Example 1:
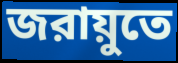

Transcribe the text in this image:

জরায়ুতে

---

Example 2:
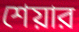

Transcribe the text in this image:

শেয়ার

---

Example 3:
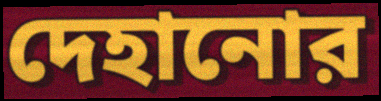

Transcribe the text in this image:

দেহানোর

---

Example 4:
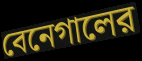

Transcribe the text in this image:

বেনেগালের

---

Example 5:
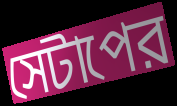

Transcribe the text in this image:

সেটাপের